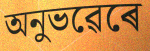
অনুভৱেৰে